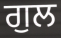
ਗੁਲ